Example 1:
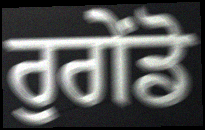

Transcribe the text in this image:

ਰੁਗੇਂਡੋ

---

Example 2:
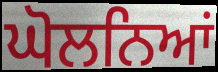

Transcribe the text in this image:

ਘੋਲਨਿਆਂ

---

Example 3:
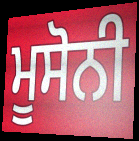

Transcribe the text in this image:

ਮੂਸੋਨੀ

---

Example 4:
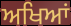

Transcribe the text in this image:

ਅਖਿਆਂ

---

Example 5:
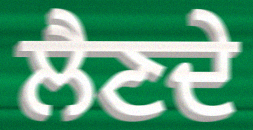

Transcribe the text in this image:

ਲੈਣਦੇ